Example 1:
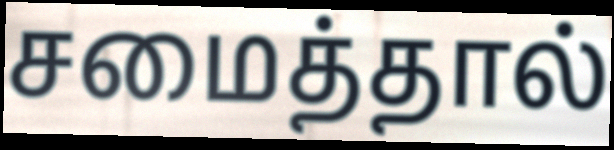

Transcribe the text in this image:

சமைத்தால்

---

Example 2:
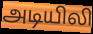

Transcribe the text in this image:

அடியிலி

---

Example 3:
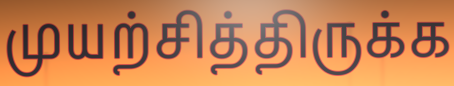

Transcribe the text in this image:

முயற்சித்திருக்க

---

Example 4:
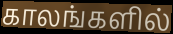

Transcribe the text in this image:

காலங்களில்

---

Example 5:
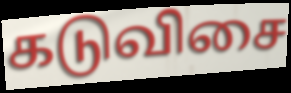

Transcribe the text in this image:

கடுவிசை